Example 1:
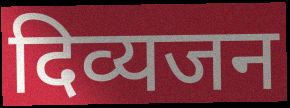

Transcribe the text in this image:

दिव्यजन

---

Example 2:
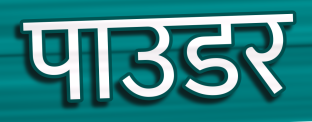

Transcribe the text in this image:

पाउडर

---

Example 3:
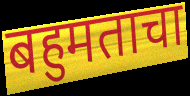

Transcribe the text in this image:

बहुमताचा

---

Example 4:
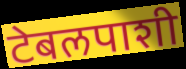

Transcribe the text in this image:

टेबलपाशी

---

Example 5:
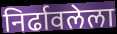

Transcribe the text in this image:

निर्ढावलेला